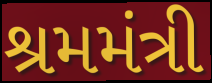
શ્રમમંત્રી